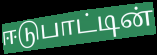
ஈடுபாட்டின்